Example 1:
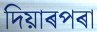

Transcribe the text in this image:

দিয়াৰপৰা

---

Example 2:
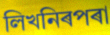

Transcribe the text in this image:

লিখনিৰপৰা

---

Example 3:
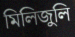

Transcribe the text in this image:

মিলিজুলি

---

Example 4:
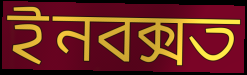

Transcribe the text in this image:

ইনবক্সত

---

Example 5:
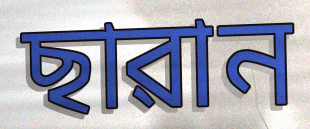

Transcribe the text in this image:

ছাৱান